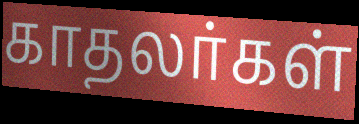
காதலர்கள்